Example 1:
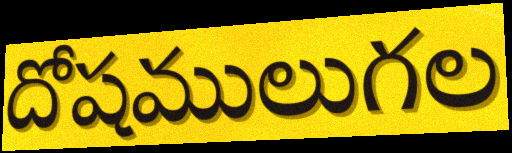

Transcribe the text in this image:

దోషములుగల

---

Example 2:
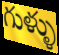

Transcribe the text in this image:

గుళ్ళు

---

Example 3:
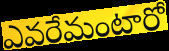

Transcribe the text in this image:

ఎవరేమంటారో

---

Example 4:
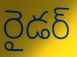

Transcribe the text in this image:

రైడర్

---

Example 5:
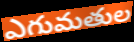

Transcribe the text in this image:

ఎగుమతుల